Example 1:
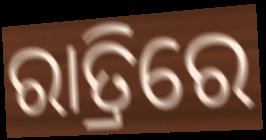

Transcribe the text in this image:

ରାତ୍ରିରେ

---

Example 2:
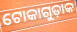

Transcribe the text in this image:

ଟୋକାଗୁଡ଼ାକ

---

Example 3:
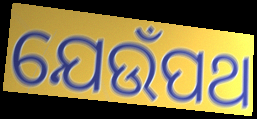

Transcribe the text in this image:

ଯେଉଁପଥ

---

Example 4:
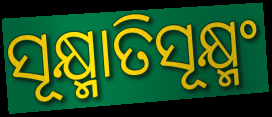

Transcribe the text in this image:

ସୂକ୍ଷ୍ମାତିସୂକ୍ଷ୍ମଂ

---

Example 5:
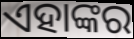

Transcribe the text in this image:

ଏହାଙ୍କର